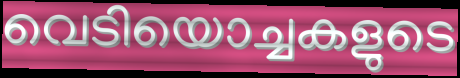
വെടിയൊച്ചകളുടെ